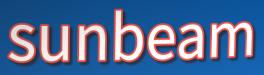
sunbeam